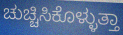
ಚುಚ್ಚಿಸಿಕೊಳ್ಳುತ್ತಾ